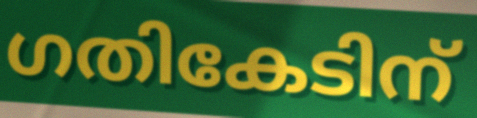
ഗതികേടിന്